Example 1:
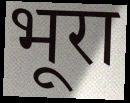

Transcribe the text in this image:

भूरा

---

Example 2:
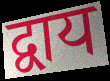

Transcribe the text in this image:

द्वाय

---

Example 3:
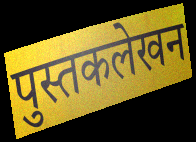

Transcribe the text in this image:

पुस्तकलेखन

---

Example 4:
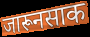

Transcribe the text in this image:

जारूनसाक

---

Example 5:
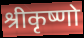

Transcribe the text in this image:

श्रीकृष्णो